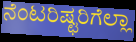
ನೆಂಟರಿಷ್ಟರಿಗೆಲ್ಲಾ